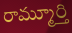
రామ్మూర్తి